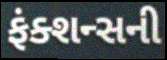
ફંક્શન્સની